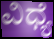
ವಿಧ್ಯೆ